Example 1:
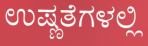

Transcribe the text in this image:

ಉಷ್ಣತೆಗಳಲ್ಲಿ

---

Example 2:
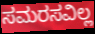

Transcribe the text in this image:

ಸಮರಸವಿಲ್ಲ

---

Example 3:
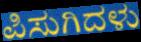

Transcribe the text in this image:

ಪಿಸುಗಿದಳು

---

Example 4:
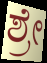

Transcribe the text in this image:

ಶ್ರೇ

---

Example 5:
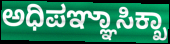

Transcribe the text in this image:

ಅಧಿಪಞ್ಞಾಸಿಕ್ಖಾ